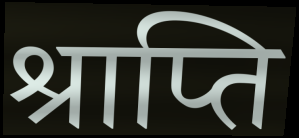
श्राप्ति